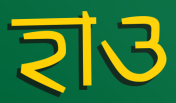
হাও